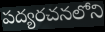
పద్యరచనలోని